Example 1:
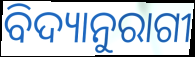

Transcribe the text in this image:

ବିଦ୍ୟାନୁରାଗୀ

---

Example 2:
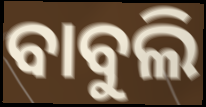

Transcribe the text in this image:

ବାବୁଲି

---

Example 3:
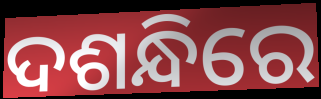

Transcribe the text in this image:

ଦଶନ୍ଧିରେ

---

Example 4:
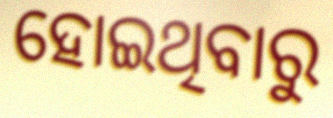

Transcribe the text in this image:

ହୋଇଥିବାରୁ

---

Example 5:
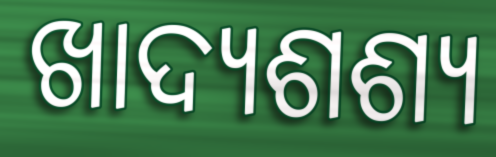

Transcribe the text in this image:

ଖାଦ୍ୟଶଶ୍ୟ